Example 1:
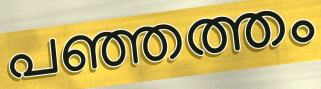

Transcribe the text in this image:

പഞ്ഞത്തം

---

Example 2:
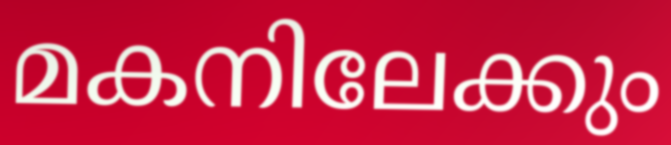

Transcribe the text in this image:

മകനിലേക്കും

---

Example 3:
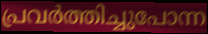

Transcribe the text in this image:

പ്രവർത്തിച്ചുപോന്ന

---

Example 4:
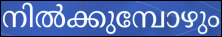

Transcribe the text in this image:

നിൽക്കുമ്പോഴും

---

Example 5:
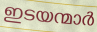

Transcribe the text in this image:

ഇടയന്മാർ